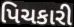
પિચકારી